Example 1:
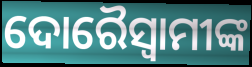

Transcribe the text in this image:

ଦୋରୈସ୍ବାମୀଙ୍କ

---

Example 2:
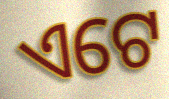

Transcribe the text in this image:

ଏଟେ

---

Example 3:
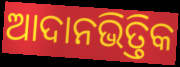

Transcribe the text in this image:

ଆଦାନଭିତ୍ତିକ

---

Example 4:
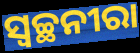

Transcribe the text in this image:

ସ୍ୱଚ୍ଛନୀରା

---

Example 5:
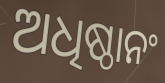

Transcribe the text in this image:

ଅଧିଷ୍ଠାନଂ